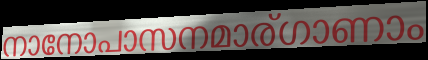
നാനോപാസനമാര്ഗാണാം